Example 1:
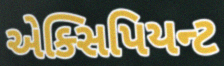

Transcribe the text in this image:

એક્સિપિયન્ટ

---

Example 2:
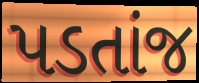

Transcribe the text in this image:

પડતાંજ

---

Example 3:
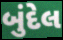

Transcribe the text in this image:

બુંદેલ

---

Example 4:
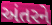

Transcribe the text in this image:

અંતરને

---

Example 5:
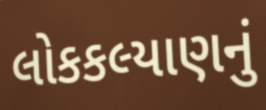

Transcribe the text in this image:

લોકકલ્યાણનું